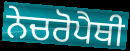
ਨੇਚਰੋਪੈਥੀ